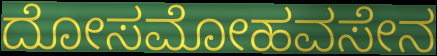
ದೋಸಮೋಹವಸೇನ